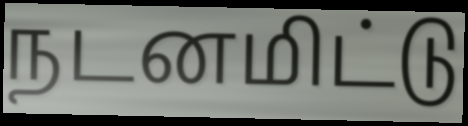
நடனமிட்டு